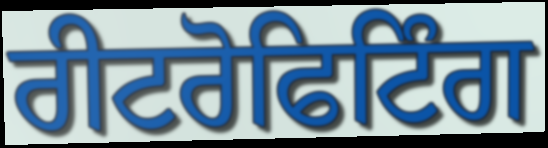
ਰੀਟਰੋਫਿਟਿੰਗ